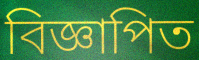
বিজ্ঞাপিত